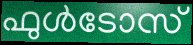
ഫുൾടോസ്